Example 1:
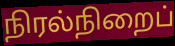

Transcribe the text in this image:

நிரல்நிறைப்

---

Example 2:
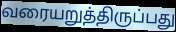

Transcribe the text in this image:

வரையறுத்திருப்பது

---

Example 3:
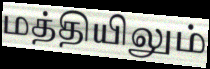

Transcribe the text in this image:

மத்தியிலும்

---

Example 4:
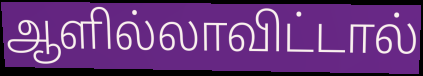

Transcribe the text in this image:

ஆளில்லாவிட்டால்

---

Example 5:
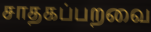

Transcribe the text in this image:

சாதகப்பறவை